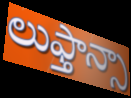
లుఫ్తాన్సా